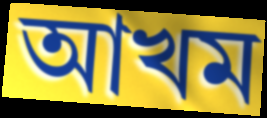
আখম